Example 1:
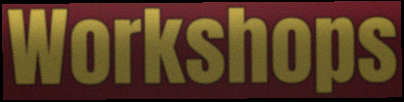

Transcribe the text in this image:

Workshops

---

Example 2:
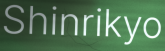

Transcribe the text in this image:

Shinrikyo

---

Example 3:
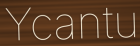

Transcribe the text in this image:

Ycantu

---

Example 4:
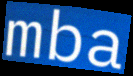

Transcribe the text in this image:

mba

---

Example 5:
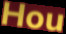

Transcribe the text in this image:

Hou